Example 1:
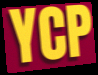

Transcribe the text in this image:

YCP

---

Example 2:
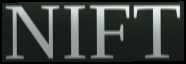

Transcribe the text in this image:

NIFT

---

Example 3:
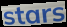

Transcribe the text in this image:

stars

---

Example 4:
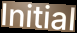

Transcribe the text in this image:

Initial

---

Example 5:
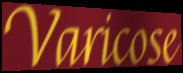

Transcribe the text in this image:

Varicose